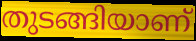
തുടങ്ങിയാണ്